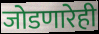
जोडणारेही